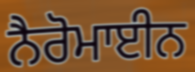
ਨੈਰੋਮਾਈਨ